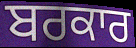
ਬਰਕਾਰ